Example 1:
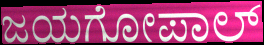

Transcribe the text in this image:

ಜಯಗೋಪಾಲ್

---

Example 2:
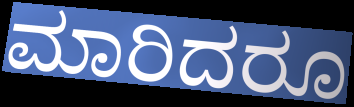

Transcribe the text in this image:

ಮಾರಿದರೂ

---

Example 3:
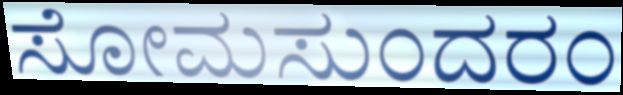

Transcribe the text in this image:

ಸೋಮಸುಂದರಂ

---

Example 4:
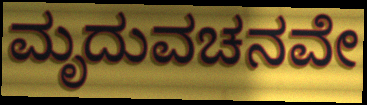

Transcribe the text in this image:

ಮೃದುವಚನವೇ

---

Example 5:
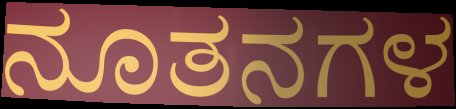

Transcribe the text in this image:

ನೂತನಗಳ